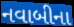
નવાબીના